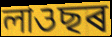
লাওছৰ